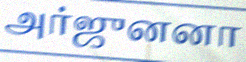
அர்ஜுனனா